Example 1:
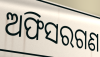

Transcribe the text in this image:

ଅଫିସରଗଣ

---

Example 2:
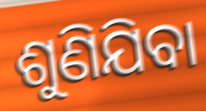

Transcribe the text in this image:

ଶୁଣିଯିବା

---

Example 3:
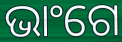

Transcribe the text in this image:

ଭାଂଗେ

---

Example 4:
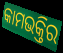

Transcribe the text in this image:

କାମଭକ୍ତିର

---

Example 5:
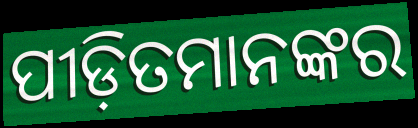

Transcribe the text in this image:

ପୀଡ଼ିତମାନଙ୍କର